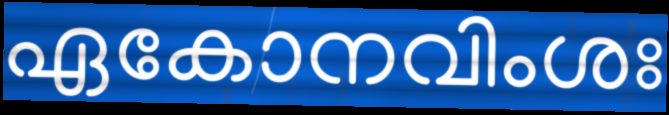
ഏകോനവിംശഃ